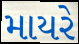
માયરે